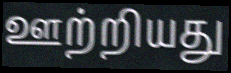
ஊற்றியது